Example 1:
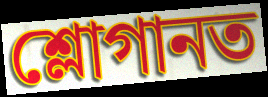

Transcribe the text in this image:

শ্লোগানত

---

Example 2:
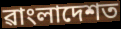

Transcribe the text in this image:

ৱাংলাদেশত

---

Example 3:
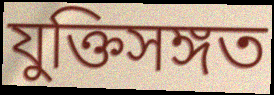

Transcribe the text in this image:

যুক্তিসঙ্গত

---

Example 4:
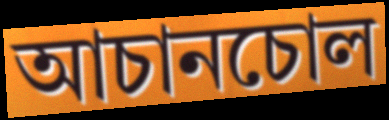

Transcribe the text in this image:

আচানচোল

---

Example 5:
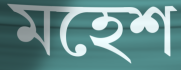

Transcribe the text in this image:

মহেশ